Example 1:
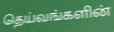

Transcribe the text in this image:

தெய்வங்களின்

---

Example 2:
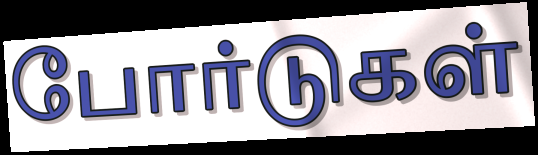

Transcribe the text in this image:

போர்டுகள்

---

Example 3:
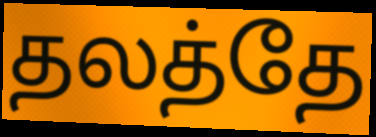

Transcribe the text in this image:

தலத்தே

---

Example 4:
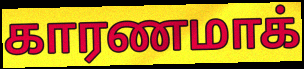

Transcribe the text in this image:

காரணமாக்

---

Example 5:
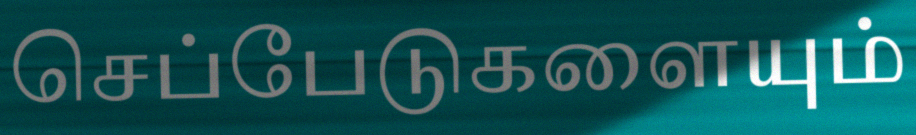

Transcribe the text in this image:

செப்பேடுகளையும்